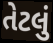
તેટલું